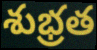
శుభ్రత